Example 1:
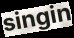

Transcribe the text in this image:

singin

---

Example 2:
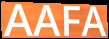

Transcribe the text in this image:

AAFA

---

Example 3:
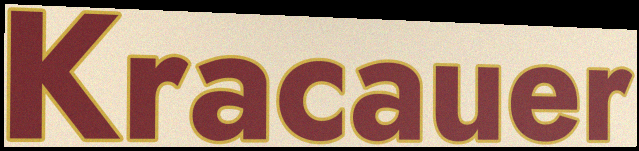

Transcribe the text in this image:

Kracauer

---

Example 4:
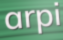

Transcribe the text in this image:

arpi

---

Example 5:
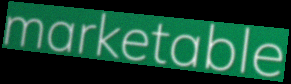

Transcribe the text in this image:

marketable